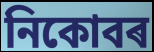
নিকোবৰ